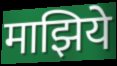
माझिये